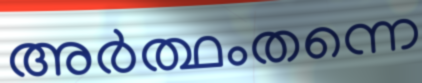
അർത്ഥംതന്നെ